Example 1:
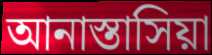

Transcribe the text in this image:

আনাস্তাসিয়া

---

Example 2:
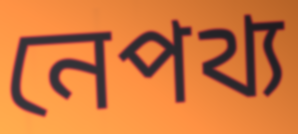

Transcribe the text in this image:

নেপথ্য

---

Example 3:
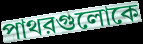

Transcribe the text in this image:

পাথরগুলোকে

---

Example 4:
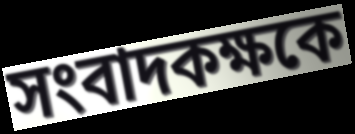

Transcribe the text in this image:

সংবাদকক্ষকে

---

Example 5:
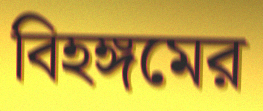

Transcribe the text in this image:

বিহঙ্গমের